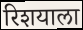
रिशयाला